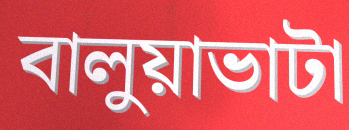
বালুয়াভাটা